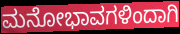
ಮನೋಭಾವಗಳಿಂದಾಗಿ